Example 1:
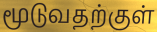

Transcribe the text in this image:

மூடுவதற்குள்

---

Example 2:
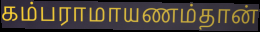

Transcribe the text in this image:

கம்பராமாயணம்தான்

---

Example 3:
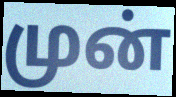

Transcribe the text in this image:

முன்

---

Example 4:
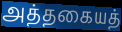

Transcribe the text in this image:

அத்தகையத்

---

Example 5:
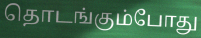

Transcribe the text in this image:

தொடங்கும்போது